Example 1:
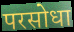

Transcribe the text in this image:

परसोधा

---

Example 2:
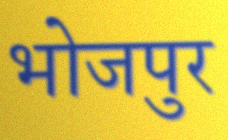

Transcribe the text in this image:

भोजपुर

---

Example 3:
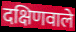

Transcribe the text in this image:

दक्षिणवाले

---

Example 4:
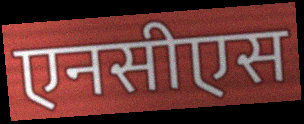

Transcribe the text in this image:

एनसीएस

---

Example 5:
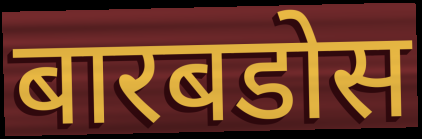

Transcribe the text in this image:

बारबडोस